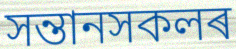
সন্তানসকলৰ